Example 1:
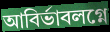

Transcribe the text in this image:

আবির্ভাবলগ্নে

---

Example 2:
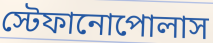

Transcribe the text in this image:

স্টেফানোপোলাস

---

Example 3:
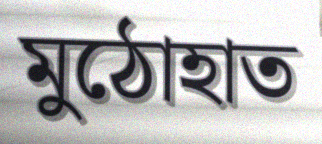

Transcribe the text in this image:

মুঠোহাত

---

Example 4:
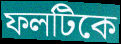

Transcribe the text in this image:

ফলটিকে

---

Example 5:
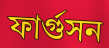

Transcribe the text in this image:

ফার্গুসন